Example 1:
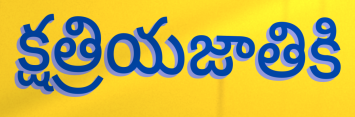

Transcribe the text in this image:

క్షత్రియజాతికి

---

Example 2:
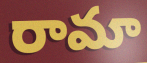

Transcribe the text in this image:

రామా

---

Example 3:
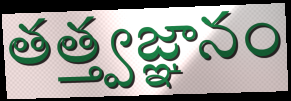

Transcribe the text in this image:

తత్త్వజ్ఞానం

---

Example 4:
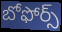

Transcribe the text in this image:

బోఫోర్స్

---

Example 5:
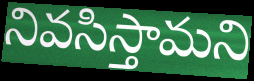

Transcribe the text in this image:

నివసిస్తామని